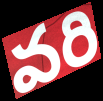
వరి